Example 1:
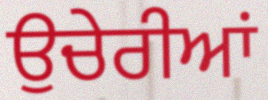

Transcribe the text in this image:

ਉਚੇਰੀਆਂ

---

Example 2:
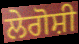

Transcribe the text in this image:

ਲੇਗੋਸ਼ੀ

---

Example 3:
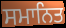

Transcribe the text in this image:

ਸਮਾਨਿਤ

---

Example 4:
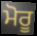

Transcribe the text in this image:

ਮੋਰੂ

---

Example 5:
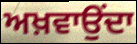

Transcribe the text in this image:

ਅਖ਼ਵਾਉਂਦਾ